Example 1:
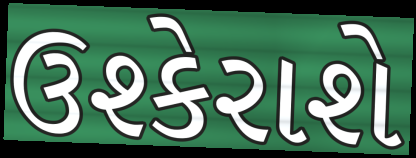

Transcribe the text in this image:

ઉશ્કેરાશે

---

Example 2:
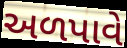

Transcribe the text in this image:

અળપાવે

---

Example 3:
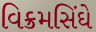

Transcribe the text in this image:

વિક્રમસિંઘે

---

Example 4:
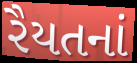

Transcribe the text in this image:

રૈયતનાં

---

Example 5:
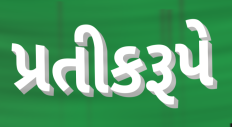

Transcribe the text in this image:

પ્રતીકરૂપે